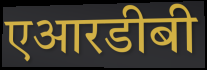
एआरडीबी